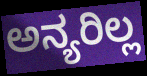
ಅನ್ಯರಿಲ್ಲ